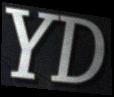
YD